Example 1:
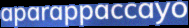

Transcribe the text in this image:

aparappaccayo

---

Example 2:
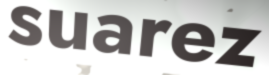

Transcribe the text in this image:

suarez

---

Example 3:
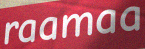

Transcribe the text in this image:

raamaa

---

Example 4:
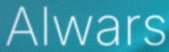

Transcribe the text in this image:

Alwars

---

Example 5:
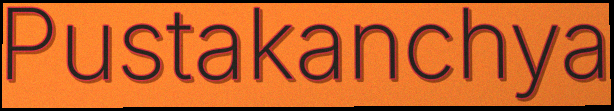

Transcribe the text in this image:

Pustakanchya